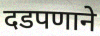
दडपणाने